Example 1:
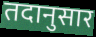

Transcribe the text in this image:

तदानुसार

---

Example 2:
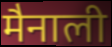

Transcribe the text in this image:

मैनाली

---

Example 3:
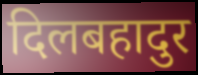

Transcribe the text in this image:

दिलबहादुर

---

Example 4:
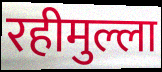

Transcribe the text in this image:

रहीमुल्ला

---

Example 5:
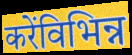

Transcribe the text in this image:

करेंविभिन्न